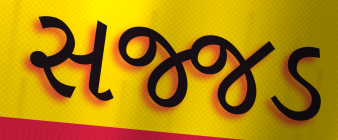
સજ્જડ